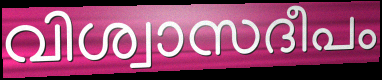
വിശ്വാസദീപം